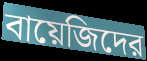
বায়েজিদের